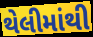
થેલીમાંથી